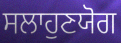
ਸਲਾਹੁਣਯੋਗ